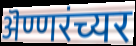
ऄण्णरंच्यर